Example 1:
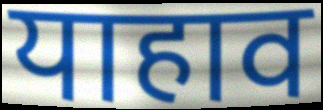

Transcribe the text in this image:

याहाव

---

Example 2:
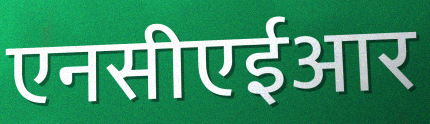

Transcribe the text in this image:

एनसीएईआर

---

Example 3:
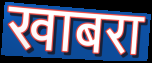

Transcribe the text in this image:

खाबरा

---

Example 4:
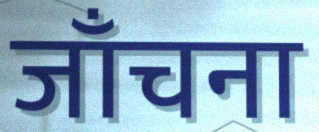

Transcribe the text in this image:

जाँचना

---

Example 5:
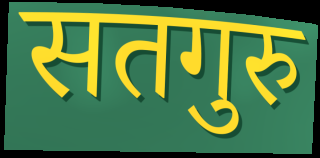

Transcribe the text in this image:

सतगुरु